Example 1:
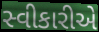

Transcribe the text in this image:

સ્વીકારીએ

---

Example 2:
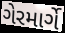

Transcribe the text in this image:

ગેરમાર્ગે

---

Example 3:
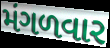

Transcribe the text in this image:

મંગળવાર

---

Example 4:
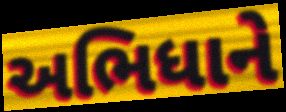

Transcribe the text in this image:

અભિધાને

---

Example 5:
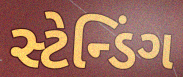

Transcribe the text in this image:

સ્ટેન્ડિંગ